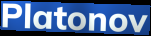
Platonov